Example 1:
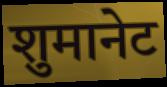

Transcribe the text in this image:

शुमानेट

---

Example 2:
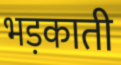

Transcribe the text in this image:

भड़काती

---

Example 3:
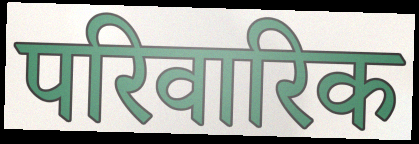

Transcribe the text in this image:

परिवारिक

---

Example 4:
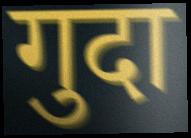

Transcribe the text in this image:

गुदा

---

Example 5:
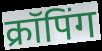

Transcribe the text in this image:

क्रॉपिंग